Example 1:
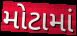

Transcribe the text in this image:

મોટામાં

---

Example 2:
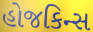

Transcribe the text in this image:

હોજકિન્સ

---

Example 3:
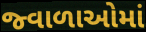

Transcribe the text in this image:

જ્વાળાઓમાં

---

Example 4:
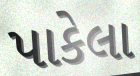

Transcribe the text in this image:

પાકેલા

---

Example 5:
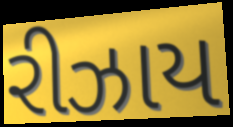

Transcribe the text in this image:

રીઝાય